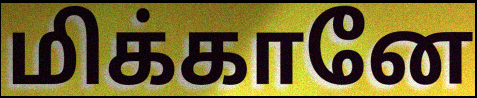
மிக்கானே